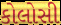
કોલોસી